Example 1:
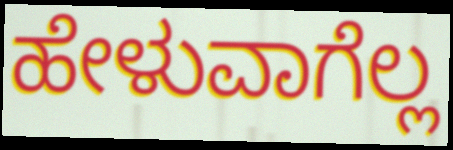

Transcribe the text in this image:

ಹೇಳುವಾಗೆಲ್ಲ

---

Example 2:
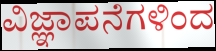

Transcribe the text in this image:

ವಿಜ್ಞಾಪನೆಗಳಿಂದ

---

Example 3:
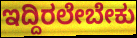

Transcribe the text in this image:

ಇದ್ದಿರಲೇಬೇಕು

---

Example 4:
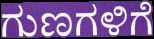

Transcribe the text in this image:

ಗುಣಗಳಿಗೆ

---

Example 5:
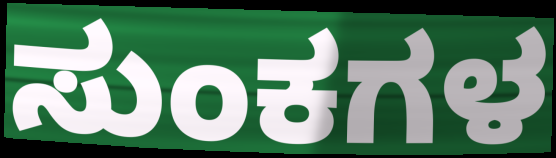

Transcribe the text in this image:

ಸುಂಕಗಳ